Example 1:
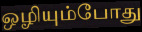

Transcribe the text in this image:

ஒழியும்போது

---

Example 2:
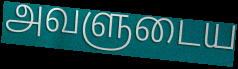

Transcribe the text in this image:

அவளுடைய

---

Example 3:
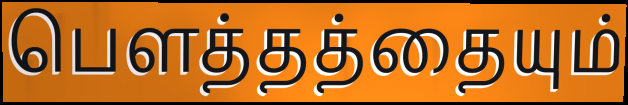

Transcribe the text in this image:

பெளத்தத்தையும்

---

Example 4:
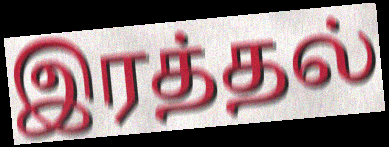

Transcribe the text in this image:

இரத்தல்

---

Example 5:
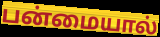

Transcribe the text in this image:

பன்மையால்